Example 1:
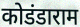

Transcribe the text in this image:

कोडंडाराम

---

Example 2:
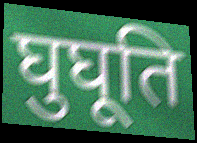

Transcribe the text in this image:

घुघूति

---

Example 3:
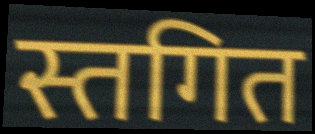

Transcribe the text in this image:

स्तगित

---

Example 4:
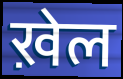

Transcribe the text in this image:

ख़ेल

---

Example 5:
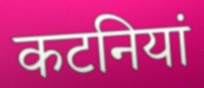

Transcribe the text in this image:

कटनियां